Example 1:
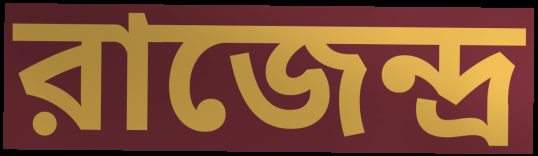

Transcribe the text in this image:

রাজেন্দ্র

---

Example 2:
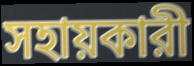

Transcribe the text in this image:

সহায়কারী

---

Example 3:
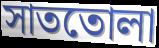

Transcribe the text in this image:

সাততোলা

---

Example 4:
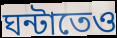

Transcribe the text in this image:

ঘন্টাতেও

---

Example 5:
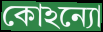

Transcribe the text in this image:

কোঽন্যো